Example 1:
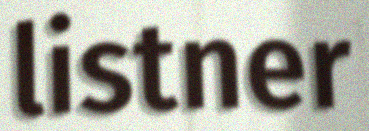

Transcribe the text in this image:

listner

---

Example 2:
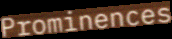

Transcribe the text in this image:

Prominences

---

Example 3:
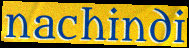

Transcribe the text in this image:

nachindi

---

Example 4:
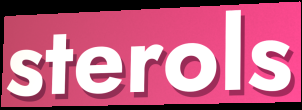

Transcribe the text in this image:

sterols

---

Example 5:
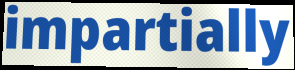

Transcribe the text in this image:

impartially